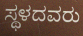
ಸ್ಥಳದವರು